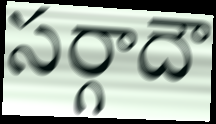
సర్గాదౌ